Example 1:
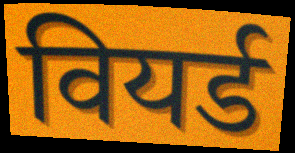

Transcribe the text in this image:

वियर्ड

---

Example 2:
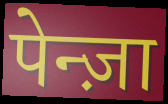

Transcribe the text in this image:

पेन्ज़ा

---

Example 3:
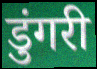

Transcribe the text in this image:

डुंगरी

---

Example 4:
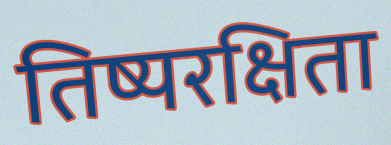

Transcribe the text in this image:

तिष्यरक्षिता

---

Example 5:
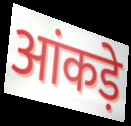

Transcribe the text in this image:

आंकड़े